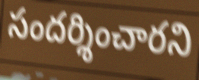
సందర్శించారని